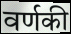
वर्णकी